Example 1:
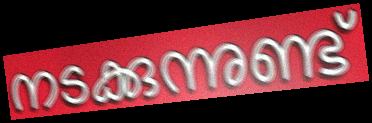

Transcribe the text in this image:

നടക്കുന്നുണ്ട്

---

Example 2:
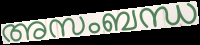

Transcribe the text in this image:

അസംബന്ധ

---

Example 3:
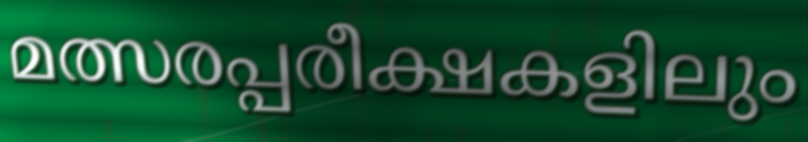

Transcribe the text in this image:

മത്സരപ്പരീക്ഷകളിലും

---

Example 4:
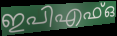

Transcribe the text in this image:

ഇപിഎഫ്ഒ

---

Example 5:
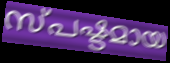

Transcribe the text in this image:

സ്പഷ്ടമായ